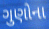
ગુણોના